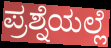
ಪ್ರಶ್ನೆಯಲ್ಲೆ